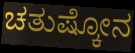
ಚತುಷ್ಕೋನ